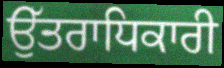
ਉੱਤਰਾਧਿਕਾਰੀ